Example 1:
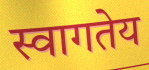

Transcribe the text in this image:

स्वागतेय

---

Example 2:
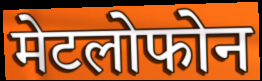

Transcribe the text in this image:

मेटलोफोन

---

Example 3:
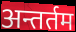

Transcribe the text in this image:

अन्तर्तम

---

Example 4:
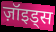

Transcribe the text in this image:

ज़ॉइड्स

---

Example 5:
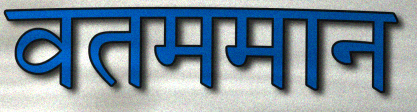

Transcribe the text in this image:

वतममान